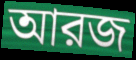
আরজ